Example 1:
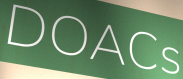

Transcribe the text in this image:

DOACs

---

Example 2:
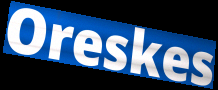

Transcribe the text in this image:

Oreskes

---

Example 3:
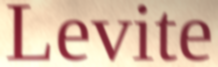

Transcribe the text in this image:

Levite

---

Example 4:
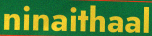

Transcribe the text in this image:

ninaithaal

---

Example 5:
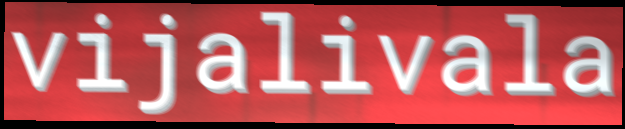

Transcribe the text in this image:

vijalivala